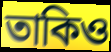
তাকিও